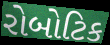
રોબોટિક